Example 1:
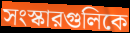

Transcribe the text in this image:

সংস্কারগুলিকে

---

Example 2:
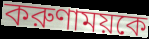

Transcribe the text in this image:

করুণাময়কে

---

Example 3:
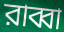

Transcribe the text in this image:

রাব্বা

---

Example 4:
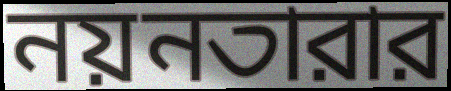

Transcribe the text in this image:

নয়নতারার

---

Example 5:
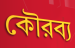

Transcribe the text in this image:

কৌরব্য